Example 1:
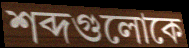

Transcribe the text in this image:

শব্দগুলোকে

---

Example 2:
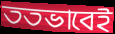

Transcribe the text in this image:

ততভাবেই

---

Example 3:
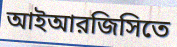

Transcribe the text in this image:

আইআরজিসিতে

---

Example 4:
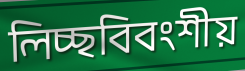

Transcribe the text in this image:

লিচ্ছবিবংশীয়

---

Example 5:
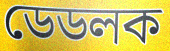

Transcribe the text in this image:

ডেডলক